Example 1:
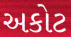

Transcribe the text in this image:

અકોટ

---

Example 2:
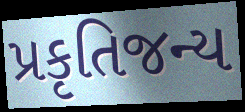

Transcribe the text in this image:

પ્રકૃતિજન્ય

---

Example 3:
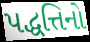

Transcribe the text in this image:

પદ્ધત્તિનો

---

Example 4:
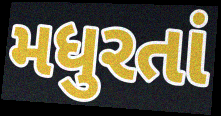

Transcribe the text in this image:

મધુરતાં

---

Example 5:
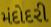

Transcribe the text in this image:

મંદોદરી